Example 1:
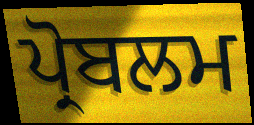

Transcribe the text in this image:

ਪ੍ਰੋਬਲਮ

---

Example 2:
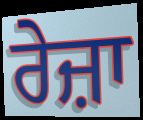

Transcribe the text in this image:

ਰੇਜ਼ਾ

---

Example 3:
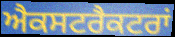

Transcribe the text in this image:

ਐਕਸਟਰੈਕਟਰਾਂ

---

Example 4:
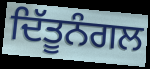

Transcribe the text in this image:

ਦਿੱਤੂਨੰਗਲ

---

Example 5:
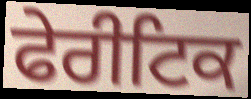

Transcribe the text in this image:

ਫੇਰੀਟਿਕ